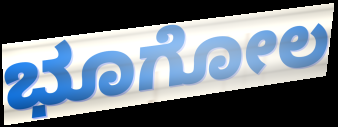
ಭೂಗೋಲ